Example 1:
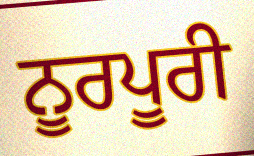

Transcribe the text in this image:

ਨੂਰਪੂਰੀ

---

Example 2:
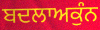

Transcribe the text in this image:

ਬਦਲਾਅਕੁੰਨ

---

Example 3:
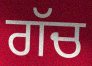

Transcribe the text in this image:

ਗੱਚ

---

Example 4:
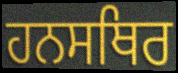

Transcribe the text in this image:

ਹਨਸਥਿਰ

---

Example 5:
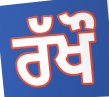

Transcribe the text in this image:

ਰੱਖੌ